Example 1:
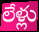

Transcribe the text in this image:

లేళ్లు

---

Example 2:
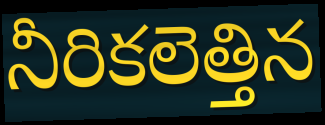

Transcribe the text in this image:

నీరికలెత్తిన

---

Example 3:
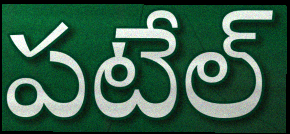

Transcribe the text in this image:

పటేల్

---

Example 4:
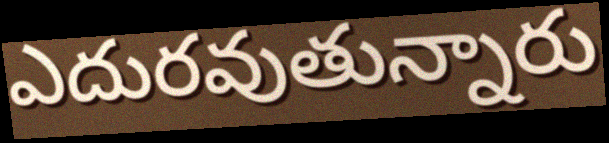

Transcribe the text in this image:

ఎదురవుతున్నారు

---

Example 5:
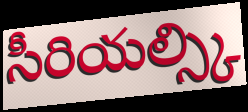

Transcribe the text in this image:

సీరియల్స్కి